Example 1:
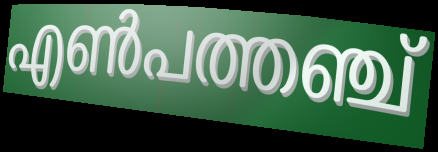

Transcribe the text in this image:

എൺപത്തഞ്ച്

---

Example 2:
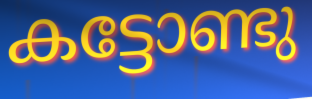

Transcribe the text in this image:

കട്ടോണ്ടു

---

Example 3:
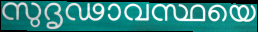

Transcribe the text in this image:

സുദൃഢാവസ്ഥയെ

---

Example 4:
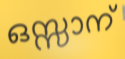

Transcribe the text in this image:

ഒസ്സാന്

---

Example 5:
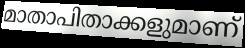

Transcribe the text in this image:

മാതാപിതാക്കളുമാണ്